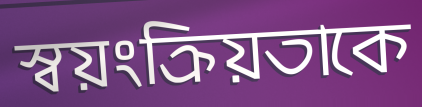
স্বয়ংক্রিয়তাকে